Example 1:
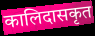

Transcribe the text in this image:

कालिदासकृत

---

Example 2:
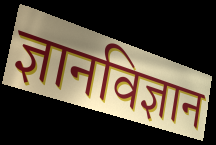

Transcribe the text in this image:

ज्ञानविज्ञान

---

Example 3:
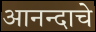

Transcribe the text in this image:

आनन्दाचे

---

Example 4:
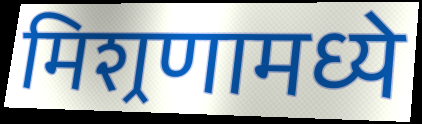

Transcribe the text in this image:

मिश्रणामध्ये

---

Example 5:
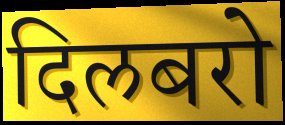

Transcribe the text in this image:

दिलबरो